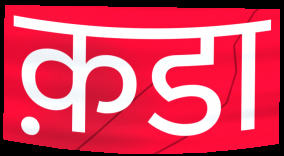
क़डा